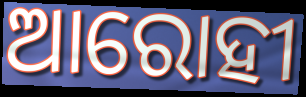
ଆରୋହୀ